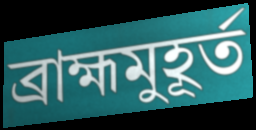
ব্রাহ্মমুহূর্ত